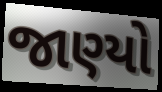
જાણ્યો